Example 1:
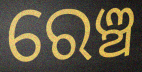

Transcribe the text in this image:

ରେଞ୍ଚ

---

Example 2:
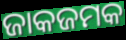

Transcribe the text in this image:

ଜାକଜମକ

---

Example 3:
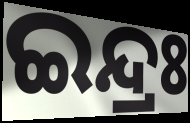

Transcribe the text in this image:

ଇନ୍ଦ୍ରଃ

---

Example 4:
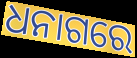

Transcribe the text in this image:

ଧନାଗରେ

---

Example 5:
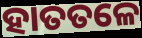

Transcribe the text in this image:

ହାତତଳେ